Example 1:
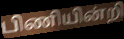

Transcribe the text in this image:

பிணியின்றி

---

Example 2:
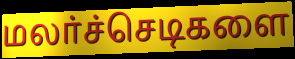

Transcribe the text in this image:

மலர்ச்செடிகளை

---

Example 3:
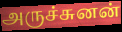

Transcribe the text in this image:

அருச்சுனன்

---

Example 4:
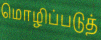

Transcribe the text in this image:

மொழிப்படுத்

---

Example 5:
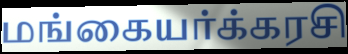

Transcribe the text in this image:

மங்கையர்க்கரசி